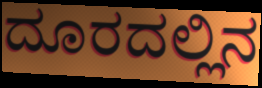
ದೂರದಲ್ಲಿನ